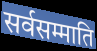
सर्वसम्माति